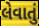
લેવાતું